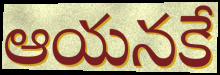
ఆయనకే